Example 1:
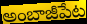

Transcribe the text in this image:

అంబాజీపేట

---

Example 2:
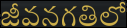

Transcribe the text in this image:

జీవనగతిలో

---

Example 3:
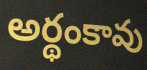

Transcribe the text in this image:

అర్థంకావు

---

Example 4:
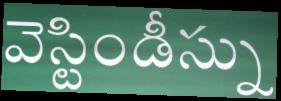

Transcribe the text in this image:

వెస్టిండీస్ను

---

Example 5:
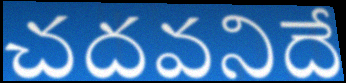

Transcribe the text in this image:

చదవనిదే